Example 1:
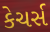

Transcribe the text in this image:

કેચર્સ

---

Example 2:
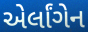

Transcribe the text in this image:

એર્લાંગેન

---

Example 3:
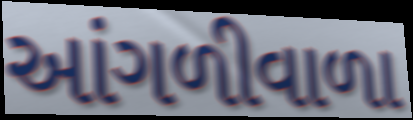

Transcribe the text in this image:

આંગળીવાળા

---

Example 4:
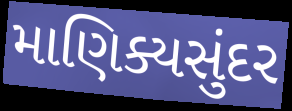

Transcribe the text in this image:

માણિક્યસુંદર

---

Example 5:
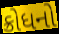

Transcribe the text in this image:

ક્રોધનો